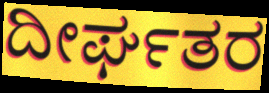
ದೀರ್ಘತರ